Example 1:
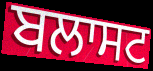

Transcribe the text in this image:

ਬਲਾਸਟ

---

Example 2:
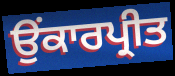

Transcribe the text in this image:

ਉਂਕਾਰਪ੍ਰੀਤ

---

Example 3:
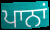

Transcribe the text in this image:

ਪਾਨਾਂ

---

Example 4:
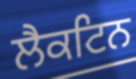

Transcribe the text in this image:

ਲੈਕਟਿਨ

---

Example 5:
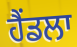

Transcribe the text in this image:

ਹੈਂਡਲਾ